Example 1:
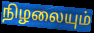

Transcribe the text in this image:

நிழலையும்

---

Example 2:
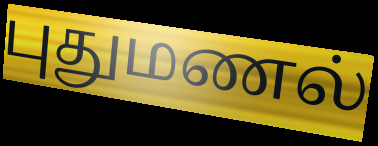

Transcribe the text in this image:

புதுமணல்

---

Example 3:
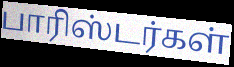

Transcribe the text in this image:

பாரிஸ்டர்கள்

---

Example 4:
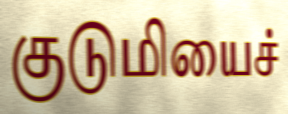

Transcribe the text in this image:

குடுமியைச்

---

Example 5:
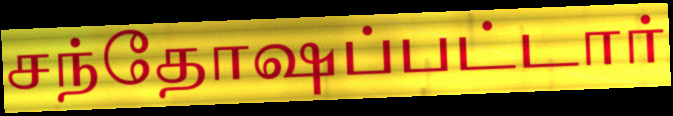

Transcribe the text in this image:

சந்தோஷப்பட்டார்